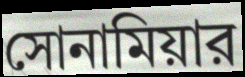
সোনামিয়ার